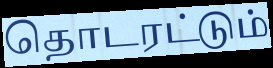
தொடரட்டும்